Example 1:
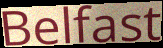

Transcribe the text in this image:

Belfast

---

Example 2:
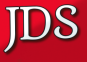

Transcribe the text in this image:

JDS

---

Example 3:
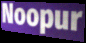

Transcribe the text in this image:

Noopur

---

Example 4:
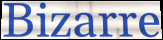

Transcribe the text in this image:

Bizarre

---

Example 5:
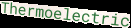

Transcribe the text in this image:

Thermoelectric